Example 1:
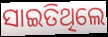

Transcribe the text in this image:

ସାଇତିଥିଲେ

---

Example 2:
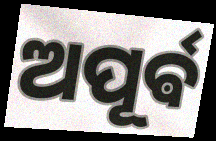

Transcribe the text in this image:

ଅପୂର୍ଵ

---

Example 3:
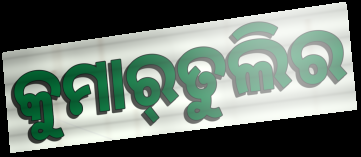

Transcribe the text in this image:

କୁମାର୍‌ତୁଲିର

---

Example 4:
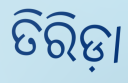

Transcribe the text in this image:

ତିରିଡ଼ା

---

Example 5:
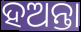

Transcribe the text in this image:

ହଅନ୍ତା